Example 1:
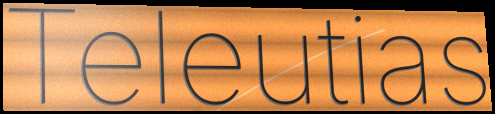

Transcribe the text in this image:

Teleutias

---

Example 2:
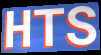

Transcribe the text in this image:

HTS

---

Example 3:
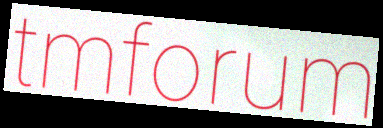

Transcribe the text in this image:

tmforum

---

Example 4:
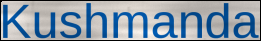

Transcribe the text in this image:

Kushmanda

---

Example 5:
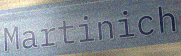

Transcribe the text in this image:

Martinich